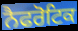
ਨੈਫਰੋਟਿਕ